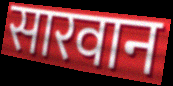
सारवान